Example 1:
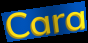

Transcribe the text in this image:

Cara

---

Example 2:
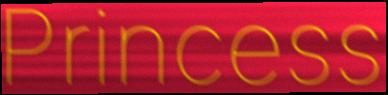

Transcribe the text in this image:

Princess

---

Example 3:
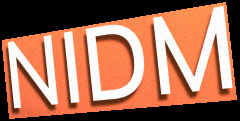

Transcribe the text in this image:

NIDM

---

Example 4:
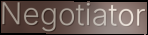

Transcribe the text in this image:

Negotiator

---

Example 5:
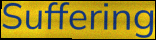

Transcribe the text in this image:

Suffering